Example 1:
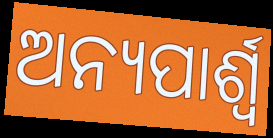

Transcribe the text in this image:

ଅନ୍ୟପାର୍ଶ୍ୱ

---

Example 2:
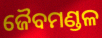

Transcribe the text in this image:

ଜୈବମଣ୍ଡଳ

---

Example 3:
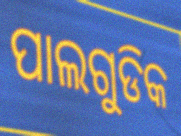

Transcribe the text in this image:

ପାଲଗୁଡିକ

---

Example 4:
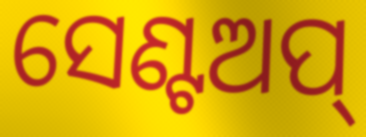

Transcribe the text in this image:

ସେଣ୍ଟଅପ୍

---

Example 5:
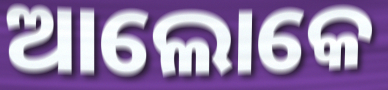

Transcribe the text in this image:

ଆଲୋକେ